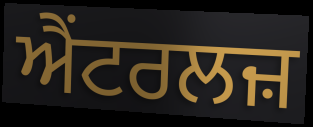
ਐਂਟਰਲਜ਼